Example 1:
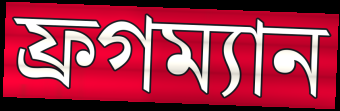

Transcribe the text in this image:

ফ্রগম্যান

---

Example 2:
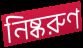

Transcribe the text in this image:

নিষ্করুণ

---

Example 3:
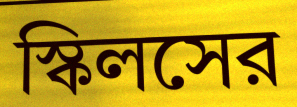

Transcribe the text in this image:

স্কিলসের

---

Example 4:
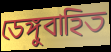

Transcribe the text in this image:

ডেঙ্গুবাহিত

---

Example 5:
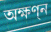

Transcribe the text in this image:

অক্ষণ্ন